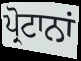
ਪ੍ਰੋਟਾਨਾਂ